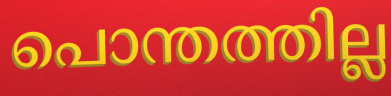
പൊന്തത്തില്ല